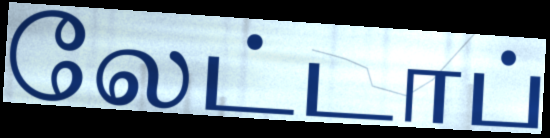
லேட்டாப்